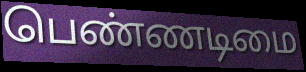
பெண்ணடிமை